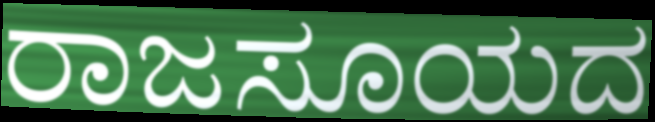
ರಾಜಸೂಯದ